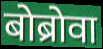
बोब्रोवा